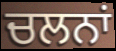
ਚਲਨਾਂ